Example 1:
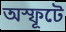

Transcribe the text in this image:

অস্ফূটে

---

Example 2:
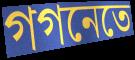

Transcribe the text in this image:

গগনেতে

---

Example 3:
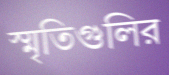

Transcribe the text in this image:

স্মৃতিগুলির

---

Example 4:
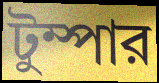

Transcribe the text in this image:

টুম্পার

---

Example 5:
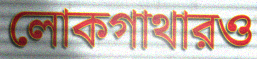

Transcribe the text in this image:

লোকগাথারও